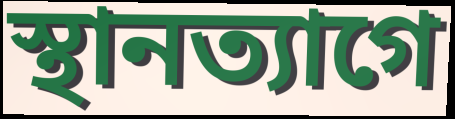
স্থানত্যাগে